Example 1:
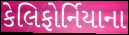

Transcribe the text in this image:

કેલિફોર્નિયાના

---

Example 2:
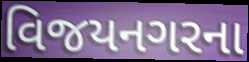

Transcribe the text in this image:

વિજયનગરના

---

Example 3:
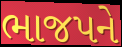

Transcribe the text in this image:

ભાજપને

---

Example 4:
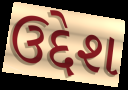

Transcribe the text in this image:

ઉદ્દેશ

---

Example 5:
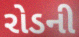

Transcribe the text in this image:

રોડની